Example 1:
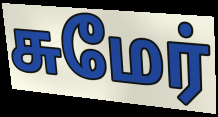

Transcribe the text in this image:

சுமேர்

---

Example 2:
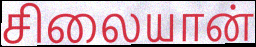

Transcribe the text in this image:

சிலையான்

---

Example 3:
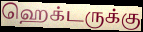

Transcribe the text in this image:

ஹெக்டருக்கு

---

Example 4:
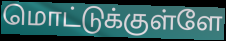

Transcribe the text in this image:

மொட்டுக்குள்ளே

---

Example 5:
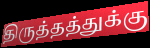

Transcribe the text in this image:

திருத்தத்துக்கு